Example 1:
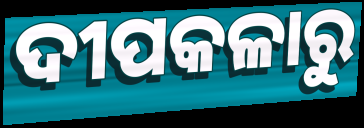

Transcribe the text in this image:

ଦୀପକଳାରୁ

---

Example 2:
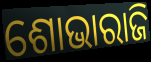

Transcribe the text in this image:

ଶୋଭାରାଜି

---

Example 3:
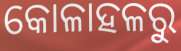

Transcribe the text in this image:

କୋଳାହଳରୁ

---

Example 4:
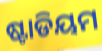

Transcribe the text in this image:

ଷ୍ଟାଡିୟମ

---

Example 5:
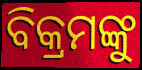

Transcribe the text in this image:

ବିକ୍ରମଙ୍କୁ